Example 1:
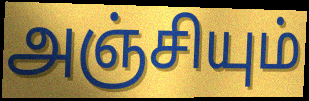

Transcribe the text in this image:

அஞ்சியும்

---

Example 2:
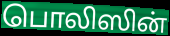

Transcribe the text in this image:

பொலிஸின்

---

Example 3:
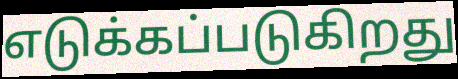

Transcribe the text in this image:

எடுக்கப்படுகிறது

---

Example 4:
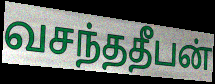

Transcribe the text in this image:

வசந்ததீபன்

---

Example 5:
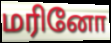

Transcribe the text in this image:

மரினோ